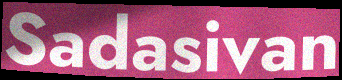
Sadasivan